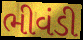
ભીવંડી